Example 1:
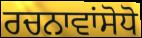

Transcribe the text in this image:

ਰਚਨਾਵਾਂਸੋਧੋ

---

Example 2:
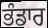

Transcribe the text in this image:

ਭੰਡਾਰ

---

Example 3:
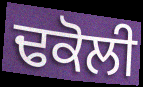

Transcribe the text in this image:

ਢਕੋਲੀ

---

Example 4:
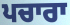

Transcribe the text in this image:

ਪਚਾਰਾ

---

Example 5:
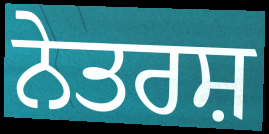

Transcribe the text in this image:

ਨੇਤਰਸ਼